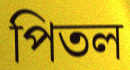
পিতল